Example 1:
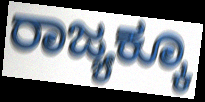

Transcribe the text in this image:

ರಾಜ್ಯಕ್ಕೂ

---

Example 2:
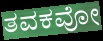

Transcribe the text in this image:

ತವಕವೋ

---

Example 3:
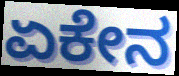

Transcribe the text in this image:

ಏಕೇನ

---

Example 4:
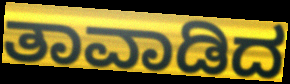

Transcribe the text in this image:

ತಾವಾಡಿದ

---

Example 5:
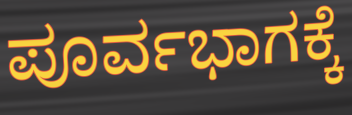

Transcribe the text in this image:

ಪೂರ್ವಭಾಗಕ್ಕೆ